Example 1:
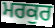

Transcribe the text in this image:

ਮਰਕੁਰ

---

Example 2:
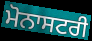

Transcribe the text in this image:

ਮੋਨਾਸਟਰੀ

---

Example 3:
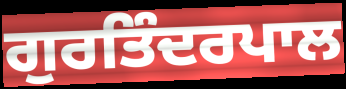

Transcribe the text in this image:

ਗੁਰਤਿੰਦਰਪਾਲ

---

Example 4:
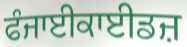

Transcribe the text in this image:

ਫੰਜਾਈਕਾਈਡਜ਼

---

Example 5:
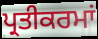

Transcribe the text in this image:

ਪ੍ਰਤੀਕਰਮਾਂ